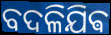
ବଦଳିଯିଵ